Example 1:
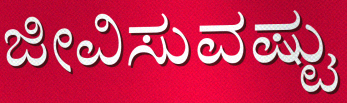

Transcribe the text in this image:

ಜೀವಿಸುವಷ್ಟು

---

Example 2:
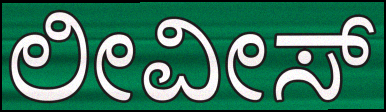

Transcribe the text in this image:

ಲೀವೀಸ್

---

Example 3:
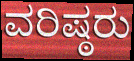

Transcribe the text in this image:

ವರಿಷ್ಠರು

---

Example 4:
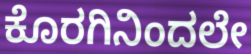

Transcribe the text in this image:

ಕೊರಗಿನಿಂದಲೇ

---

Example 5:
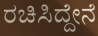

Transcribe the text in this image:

ರಚಿಸಿದ್ದೇನೆ